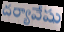
దర్యావేషు